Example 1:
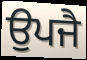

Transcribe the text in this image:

ਉਪਜੈ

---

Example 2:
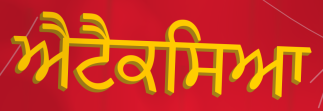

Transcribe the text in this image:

ਐਟੈਕਸਿਆ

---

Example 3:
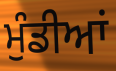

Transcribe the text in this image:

ਮੁੰਡੀਆਂ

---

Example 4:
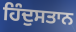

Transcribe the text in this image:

ਹਿੰਦੁਸਤਾਨ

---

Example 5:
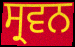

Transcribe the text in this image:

ਸ੍ਰਵਨ